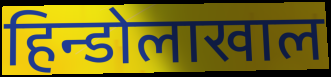
हिन्डोलाखाल